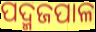
ପଦ୍ମଜପାଳ